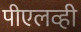
पीएलव्ही